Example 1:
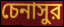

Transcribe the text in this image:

চেনাসুর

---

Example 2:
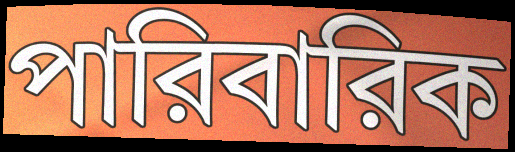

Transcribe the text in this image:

পারিবারিক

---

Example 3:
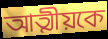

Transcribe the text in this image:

আত্মীয়কে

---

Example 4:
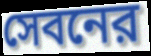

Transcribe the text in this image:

সেবনের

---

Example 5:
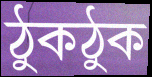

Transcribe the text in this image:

ঠুকঠুক